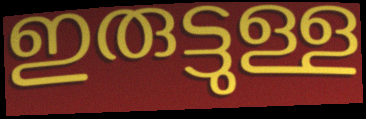
ഇരുട്ടുള്ള